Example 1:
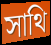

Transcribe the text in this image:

সাথি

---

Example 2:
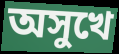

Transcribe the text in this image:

অসুখে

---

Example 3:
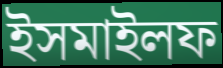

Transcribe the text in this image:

ইসমাইলফ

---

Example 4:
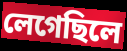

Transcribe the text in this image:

লেগেছিলে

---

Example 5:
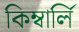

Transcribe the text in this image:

কিম্বার্লি